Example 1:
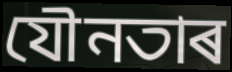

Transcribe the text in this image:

যৌনতাৰ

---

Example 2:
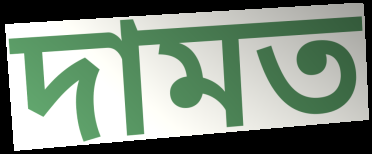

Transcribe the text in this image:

দামত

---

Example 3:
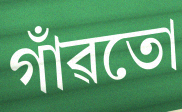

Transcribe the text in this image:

গাঁৱতো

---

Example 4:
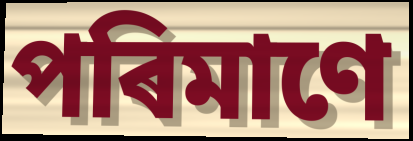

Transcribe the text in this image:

পৰিমাণে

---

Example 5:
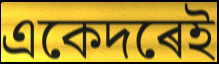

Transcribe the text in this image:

একেদৰেই